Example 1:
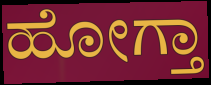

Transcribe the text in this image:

ಹೋಗ್ತಾ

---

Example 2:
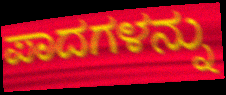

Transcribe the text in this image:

ಪಾದಗಳನ್ನು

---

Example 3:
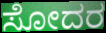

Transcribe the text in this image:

ಸೋದರ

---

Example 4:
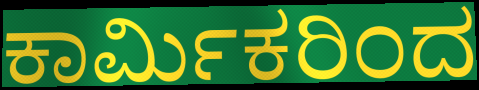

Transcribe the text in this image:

ಕಾರ್ಮಿಕರಿಂದ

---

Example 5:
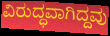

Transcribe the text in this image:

ವಿರುದ್ಧವಾಗಿದ್ದವು